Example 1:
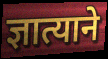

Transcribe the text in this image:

ज्ञात्याने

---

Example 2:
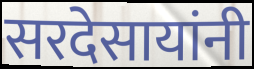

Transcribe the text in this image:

सरदेसायांनी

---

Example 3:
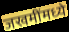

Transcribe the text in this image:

जखमींमध्ये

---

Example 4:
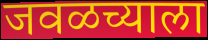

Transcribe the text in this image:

जवळच्याला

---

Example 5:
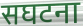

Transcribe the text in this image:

सघटना